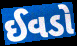
ઈવડો